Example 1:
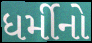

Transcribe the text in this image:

ધર્મીનો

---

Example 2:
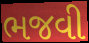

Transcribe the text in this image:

ભજવી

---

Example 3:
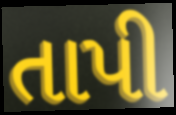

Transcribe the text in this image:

તાપી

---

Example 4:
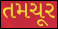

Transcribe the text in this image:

તમચૂર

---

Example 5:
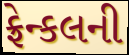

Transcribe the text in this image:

ફ્રેન્કલની